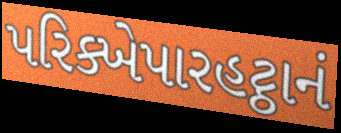
પરિક્ખેપારહટ્ઠાનં